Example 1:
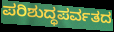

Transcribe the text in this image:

ಪರಿಶುದ್ಧಪರ್ವತದ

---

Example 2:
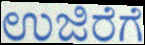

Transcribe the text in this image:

ಉಜಿರೆಗೆ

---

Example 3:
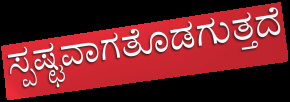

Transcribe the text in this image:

ಸ್ಪಷ್ಟವಾಗತೊಡಗುತ್ತದೆ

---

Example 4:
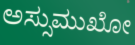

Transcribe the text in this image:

ಅಸ್ಸುಮುಖೋ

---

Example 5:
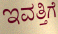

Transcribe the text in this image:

ಇವತ್ತಿಗೆ